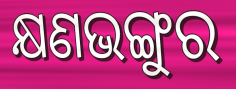
କ୍ଷଣଭଙ୍ଗୁର